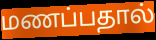
மணப்பதால்